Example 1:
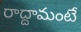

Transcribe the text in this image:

రాద్దామంటే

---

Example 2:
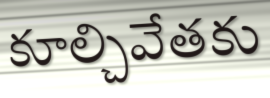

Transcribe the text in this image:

కూల్చివేతకు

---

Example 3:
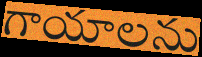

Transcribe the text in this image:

గాయాలను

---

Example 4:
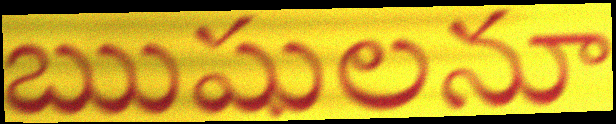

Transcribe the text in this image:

ఋషులనూ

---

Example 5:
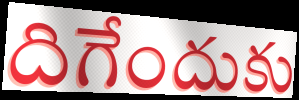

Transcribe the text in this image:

దిగేందుకు